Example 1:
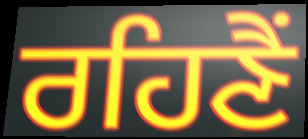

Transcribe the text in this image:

ਰਹਿਣੈਂ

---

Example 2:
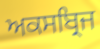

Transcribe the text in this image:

ਅਕਸਬ੍ਰਿਜ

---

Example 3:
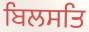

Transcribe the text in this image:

ਬਿਲਸਤਿ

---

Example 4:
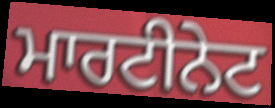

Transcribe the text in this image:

ਮਾਰਟੀਨੇਟ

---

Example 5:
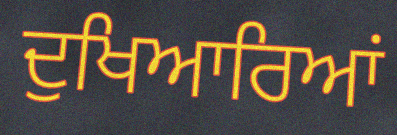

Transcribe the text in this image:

ਦੁਖਿਆਰਿਆਂ